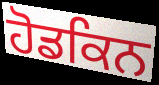
ਹੋਡਕਿਨ